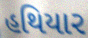
હથિયાર